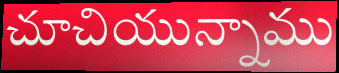
చూచియున్నాము